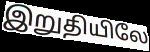
இறுதியிலே